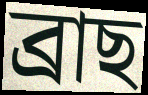
ব্ৰাছ